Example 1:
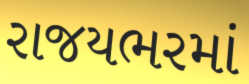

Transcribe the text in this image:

રાજયભરમાં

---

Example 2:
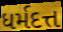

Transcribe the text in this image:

ધર્મદત્ત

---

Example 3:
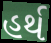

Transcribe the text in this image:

હર્થ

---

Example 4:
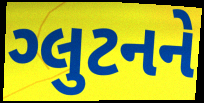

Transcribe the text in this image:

ગ્લુટનને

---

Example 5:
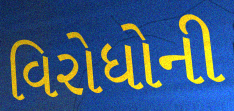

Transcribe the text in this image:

વિરોધોની